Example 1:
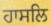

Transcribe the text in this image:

ਹਾਸਲਿ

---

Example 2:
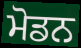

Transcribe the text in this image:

ਮੋਡਨ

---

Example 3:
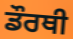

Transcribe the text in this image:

ਡੌਰਥੀ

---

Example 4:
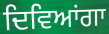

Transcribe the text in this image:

ਦਿਵਿਆਂਗਾ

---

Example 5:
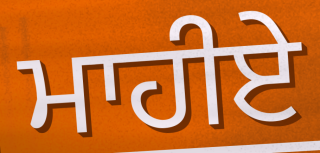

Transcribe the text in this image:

ਮਾਹੀਏ